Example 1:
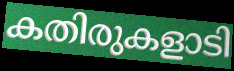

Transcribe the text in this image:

കതിരുകളാടി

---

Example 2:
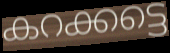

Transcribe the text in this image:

കറക്കട്ടെ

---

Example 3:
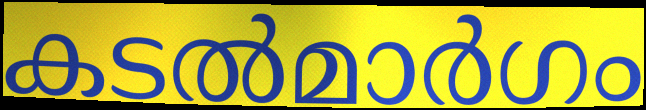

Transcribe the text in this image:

കടൽമാർഗം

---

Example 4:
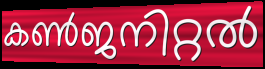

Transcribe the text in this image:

കൺജനിറ്റൽ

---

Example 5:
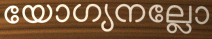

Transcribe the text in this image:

യോഗ്യനല്ലോ